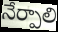
నేర్పాలి